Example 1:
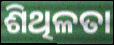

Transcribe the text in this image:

ଶିଥିଳତା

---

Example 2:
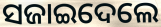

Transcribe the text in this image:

ସଜାଇଦେଲେ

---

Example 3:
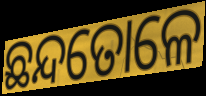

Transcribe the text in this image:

ଛନ୍ଦତୋଳେ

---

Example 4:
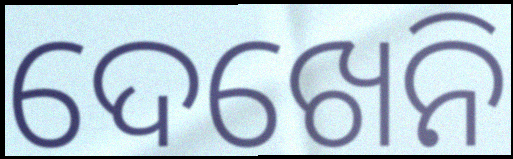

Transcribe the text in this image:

ଦେଖେନି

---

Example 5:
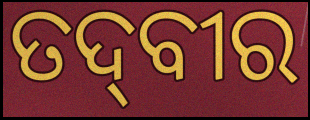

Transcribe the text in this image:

ତଦ୍‌ବୀର